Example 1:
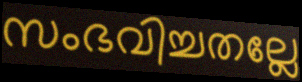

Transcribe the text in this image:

സംഭവിച്ചതല്ലേ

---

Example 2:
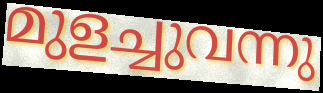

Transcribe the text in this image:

മുളച്ചുവന്നു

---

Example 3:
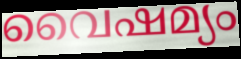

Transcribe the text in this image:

വൈഷമ്യം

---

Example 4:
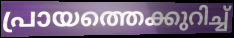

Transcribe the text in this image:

പ്രായത്തെക്കുറിച്ച്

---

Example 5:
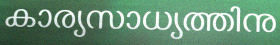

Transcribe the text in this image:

കാര്യസാധ്യത്തിനു